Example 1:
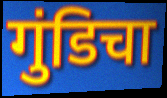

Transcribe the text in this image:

गुंडिचा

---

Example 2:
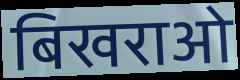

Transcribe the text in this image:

बिखराओ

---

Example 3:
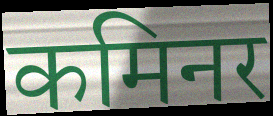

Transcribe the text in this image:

कमिनर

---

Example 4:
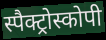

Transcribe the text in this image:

स्पैक्ट्रोस्कोपी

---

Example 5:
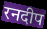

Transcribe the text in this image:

रनदीप